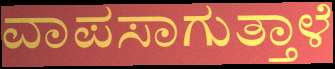
ವಾಪಸಾಗುತ್ತಾಳೆ